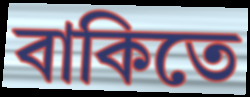
বাকিতে